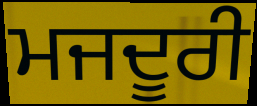
ਮਜਦੂਰੀ